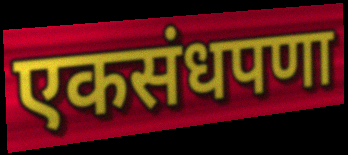
एकसंधपणा